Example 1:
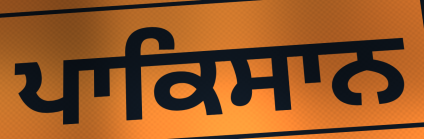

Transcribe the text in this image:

ਪਾਕਿਸਾਨ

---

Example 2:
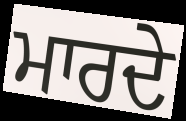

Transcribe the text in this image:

ਮਾਰਦੇ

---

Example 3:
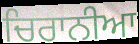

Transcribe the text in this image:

ਚਿਰਾਨੀਆ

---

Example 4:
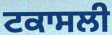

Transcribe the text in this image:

ਟਕਾਸਲੀ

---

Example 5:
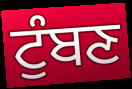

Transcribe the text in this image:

ਟੁੰਬਣ